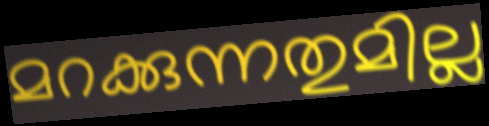
മറക്കുന്നതുമില്ല